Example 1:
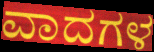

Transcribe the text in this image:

ವಾದಗಳ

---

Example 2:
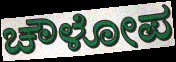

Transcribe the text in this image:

ಚೌಳೋಪ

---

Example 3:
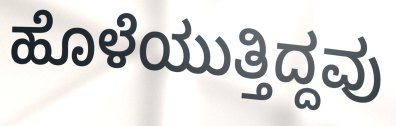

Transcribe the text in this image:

ಹೊಳೆಯುತ್ತಿದ್ದವು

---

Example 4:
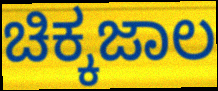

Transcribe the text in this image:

ಚಿಕ್ಕಜಾಲ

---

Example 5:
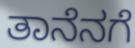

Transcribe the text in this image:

ತಾನೆನಗೆ